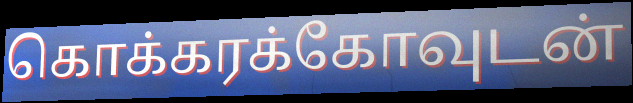
கொக்கரக்கோவுடன்